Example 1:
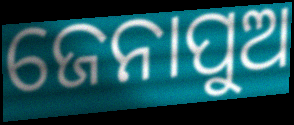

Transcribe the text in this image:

ଜେନାପୁଅ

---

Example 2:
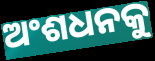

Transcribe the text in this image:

ଅଂଶଧନକୁ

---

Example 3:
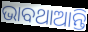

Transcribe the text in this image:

ଭାବଥାଆନ୍ତି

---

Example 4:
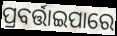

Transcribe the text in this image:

ପ୍ରବର୍ତ୍ତାଇପାରେ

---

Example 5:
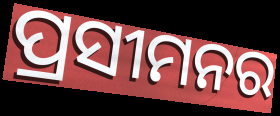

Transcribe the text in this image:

ପ୍ରସୀମନର